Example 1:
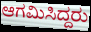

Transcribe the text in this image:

ಆಗಮಿಸಿದ್ದರು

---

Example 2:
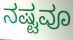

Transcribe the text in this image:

ನಷ್ಟವೂ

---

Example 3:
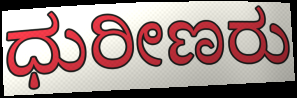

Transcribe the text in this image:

ಧುರೀಣರು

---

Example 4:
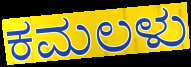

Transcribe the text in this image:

ಕಮಲಳು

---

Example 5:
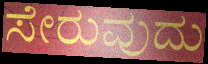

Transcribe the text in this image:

ಸೇರುವುದು